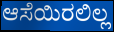
ಆಸೆಯಿರಲಿಲ್ಲ